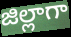
జిల్లాగా